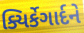
ક્યિર્કેગાર્દને